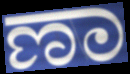
ಣಾ